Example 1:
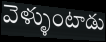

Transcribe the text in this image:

వెళ్ళుంటాడు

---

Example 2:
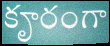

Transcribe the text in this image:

కౄరంగా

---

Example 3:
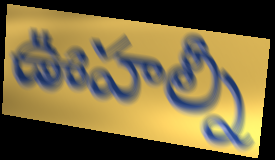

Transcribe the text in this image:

ఊహల్నీ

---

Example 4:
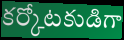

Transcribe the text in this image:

కర్కోటకుడిగా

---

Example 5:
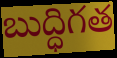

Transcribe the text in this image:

బుద్ధిగత